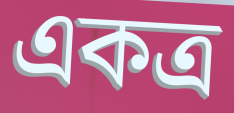
একত্ৰ